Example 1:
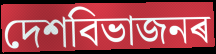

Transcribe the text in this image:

দেশবিভাজনৰ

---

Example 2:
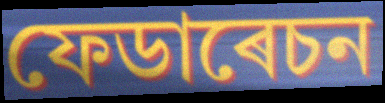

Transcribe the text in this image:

ফেডাৰেচন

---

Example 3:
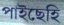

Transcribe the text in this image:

পাইছেহি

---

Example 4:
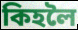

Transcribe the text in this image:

কিহলৈ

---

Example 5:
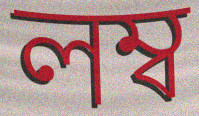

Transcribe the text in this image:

লম্ব